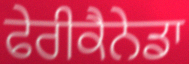
ਫੇਰੀਕੈਨੇਡਾ